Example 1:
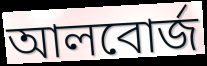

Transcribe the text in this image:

আলবোর্জ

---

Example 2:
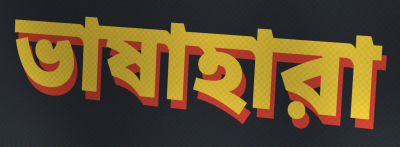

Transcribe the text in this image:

ভাষাহারা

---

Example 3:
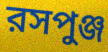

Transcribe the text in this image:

রসপুঞ্জ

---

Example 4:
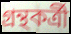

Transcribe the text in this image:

গ্রন্থকর্ত্রী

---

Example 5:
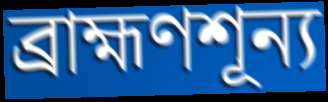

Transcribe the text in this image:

ব্রাহ্মণশূন্য